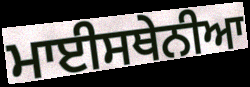
ਮਾਈਸਥੇਨੀਆ